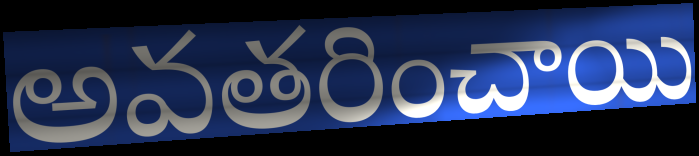
అవతరించాయి